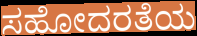
ಸಹೋದರತೆಯ